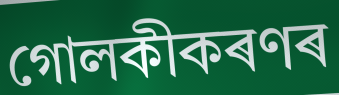
গোলকীকৰণৰ